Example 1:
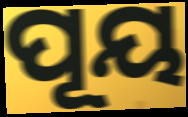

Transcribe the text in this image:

ପୂୟ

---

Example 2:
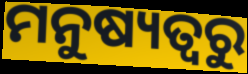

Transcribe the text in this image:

ମନୁଷ୍ୟତ୍ୱରୁ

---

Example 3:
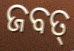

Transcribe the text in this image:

ଜବତ୍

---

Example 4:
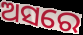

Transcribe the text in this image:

ଅସରେ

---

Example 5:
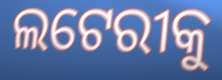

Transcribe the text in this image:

ଲଟେରୀକୁ